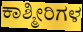
ಕಾಶ್ಮೀರಿಗಳ